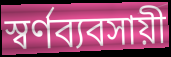
স্বর্ণব্যবসায়ী